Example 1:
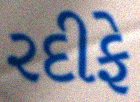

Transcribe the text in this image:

રદીફે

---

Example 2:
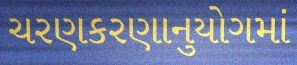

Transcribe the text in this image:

ચરણકરણાનુયોગમાં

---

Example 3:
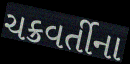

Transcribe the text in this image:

ચક્રવર્તીના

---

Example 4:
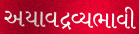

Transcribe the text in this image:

અયાવદ્રવ્યભાવી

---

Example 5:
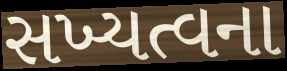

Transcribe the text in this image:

સખ્યત્વના